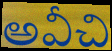
అవీచి